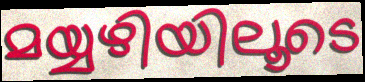
മയ്യഴിയിലൂടെ